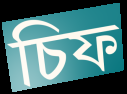
চিফ